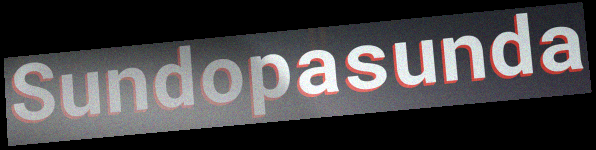
Sundopasunda